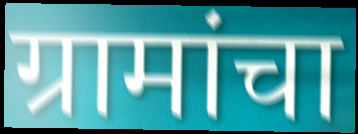
ग्रामांचा